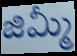
జిమ్మీ